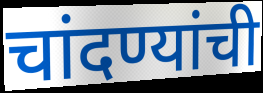
चांदण्यांची